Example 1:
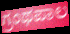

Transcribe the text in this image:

ಗ್ರಂಥಪಾಲ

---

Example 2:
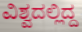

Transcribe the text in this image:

ವಿಶ್ವದಲ್ಲಿದ್ದ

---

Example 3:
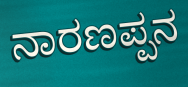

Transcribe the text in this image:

ನಾರಣಪ್ಪನ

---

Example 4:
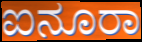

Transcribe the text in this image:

ಐನೂರಾ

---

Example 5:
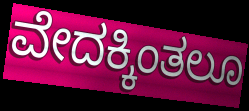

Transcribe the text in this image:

ವೇದಕ್ಕಿಂತಲೂ